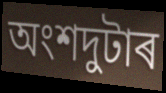
অংশদুটাৰ